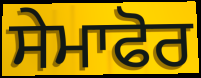
ਸੇਮਾਫੋਰ